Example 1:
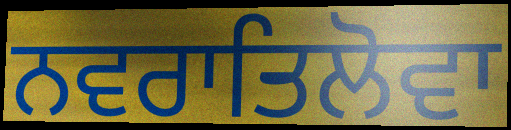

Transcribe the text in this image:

ਨਵਰਾਤਿਲੋਵਾ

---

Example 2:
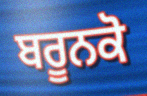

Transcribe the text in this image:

ਬਰੂਨਕੋ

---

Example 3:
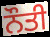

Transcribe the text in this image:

ਨੌਤੀ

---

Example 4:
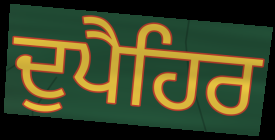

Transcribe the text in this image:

ਦੁਪੈਹਿਰ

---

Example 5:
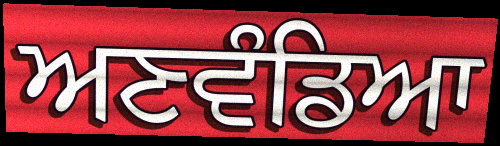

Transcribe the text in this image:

ਅਣਵੰਡਿਆ